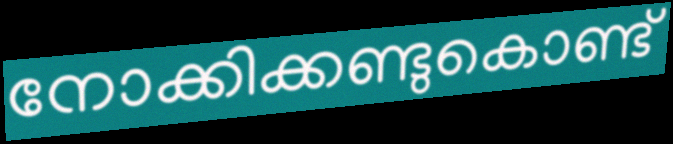
നോക്കിക്കണ്ടുകൊണ്ട്